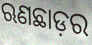
ଋଣଛାଡ଼ର